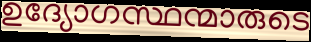
ഉദ്യോഗസ്ഥന്മാരുടെ